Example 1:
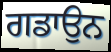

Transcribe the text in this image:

ਗਡਾਉਨ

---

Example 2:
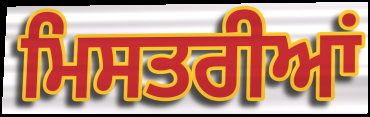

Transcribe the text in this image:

ਮਿਸਤਰੀਆਂ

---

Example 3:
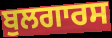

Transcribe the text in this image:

ਬੁਲਗਾਰਸ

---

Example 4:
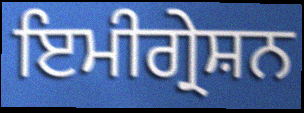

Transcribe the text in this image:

ਇਮੀਗ੍ਰੇਸ਼ਨ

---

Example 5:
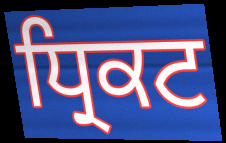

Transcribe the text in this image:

ਧ੍ਰਿਕਟ